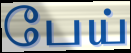
பேய்